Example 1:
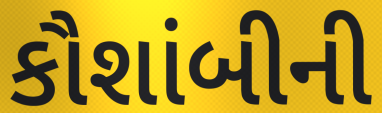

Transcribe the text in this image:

કૌશાંબીની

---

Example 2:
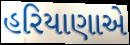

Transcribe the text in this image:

હરિયાણાએ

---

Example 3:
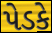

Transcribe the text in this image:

પેડકે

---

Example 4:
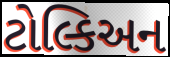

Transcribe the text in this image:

ટોલ્કિઅન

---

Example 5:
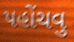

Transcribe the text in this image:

પહોંચવુ